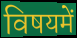
विषयमें